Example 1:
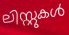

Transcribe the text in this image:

ലിസ്റ്റുകൾ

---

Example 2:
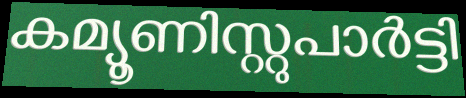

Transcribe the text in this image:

കമ്യൂണിസ്റ്റുപാർട്ടി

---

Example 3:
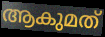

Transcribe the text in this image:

ആകുമത്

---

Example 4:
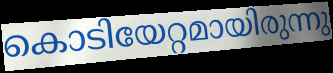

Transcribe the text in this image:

കൊടിയേറ്റമായിരുന്നു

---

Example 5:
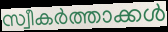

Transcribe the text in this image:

സ്വീകർത്താക്കൾ